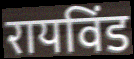
रायविंड